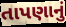
તાપણાનું